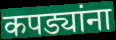
कपड्यांना